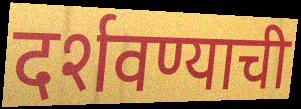
दर्शवण्याची